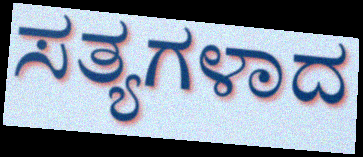
ಸತ್ಯಗಳಾದ